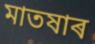
মাতষাৰ